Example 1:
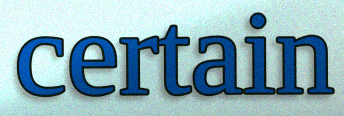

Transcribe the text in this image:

certain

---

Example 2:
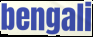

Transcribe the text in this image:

bengali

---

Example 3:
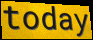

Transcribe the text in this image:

today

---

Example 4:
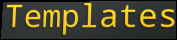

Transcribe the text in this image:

Templates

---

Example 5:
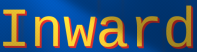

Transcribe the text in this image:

Inward